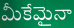
మీకేమైనా